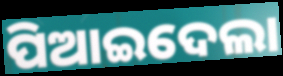
ପିଆଇଦେଲା